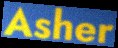
Asher